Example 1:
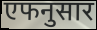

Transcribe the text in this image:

एफनुसार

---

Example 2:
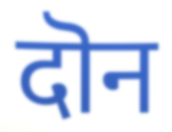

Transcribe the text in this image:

दॊन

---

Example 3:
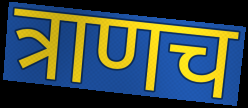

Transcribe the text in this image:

त्राणच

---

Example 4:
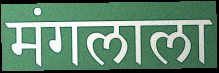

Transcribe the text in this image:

मंगलाला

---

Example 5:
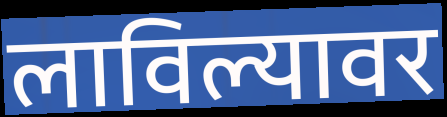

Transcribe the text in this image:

लाविल्यावर